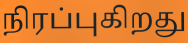
நிரப்புகிறது